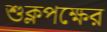
শুক্লপক্ষের